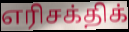
எரிசக்திக்